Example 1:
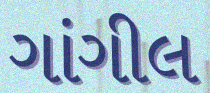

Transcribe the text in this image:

ગાંગીલ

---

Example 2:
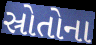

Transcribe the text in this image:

સ્રોતોના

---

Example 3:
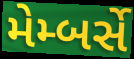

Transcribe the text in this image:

મેમ્બર્સે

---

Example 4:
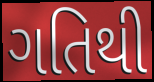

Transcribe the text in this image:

ગતિથી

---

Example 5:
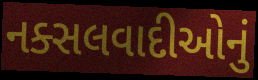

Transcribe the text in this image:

નક્સલવાદીઓનું